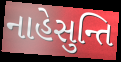
નાહેસુન્તિ